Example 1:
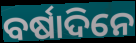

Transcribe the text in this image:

ବର୍ଷାଦିନେ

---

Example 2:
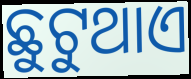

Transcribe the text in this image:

ଛୁଟୁଥାଏ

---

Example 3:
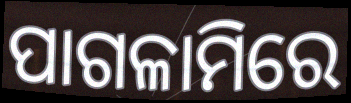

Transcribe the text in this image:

ପାଗଳାମିରେ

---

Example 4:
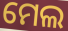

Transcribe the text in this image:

ମେଲ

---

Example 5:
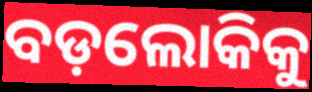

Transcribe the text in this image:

ବଡ଼ଲୋକିକୁ